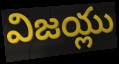
విజయ్లు